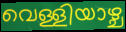
വെള്ളിയാഴ്ച